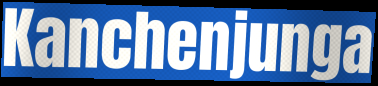
Kanchenjunga